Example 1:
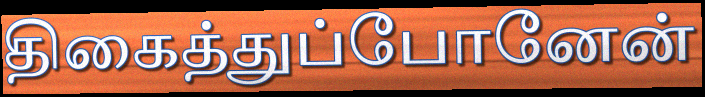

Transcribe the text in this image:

திகைத்துப்போனேன்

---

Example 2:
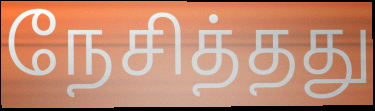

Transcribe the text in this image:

நேசித்தது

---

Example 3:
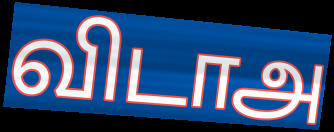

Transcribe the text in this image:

விடாஅ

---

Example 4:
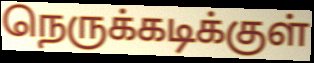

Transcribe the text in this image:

நெருக்கடிக்குள்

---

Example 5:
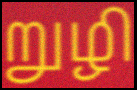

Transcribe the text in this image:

றுழி